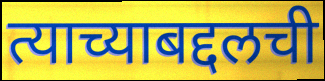
त्याच्याबद्दलची